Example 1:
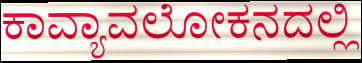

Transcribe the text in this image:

ಕಾವ್ಯಾವಲೋಕನದಲ್ಲಿ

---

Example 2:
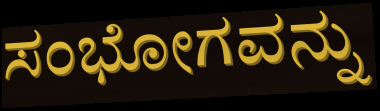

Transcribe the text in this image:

ಸಂಭೋಗವನ್ನು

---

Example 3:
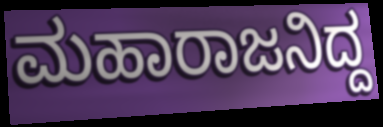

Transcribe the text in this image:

ಮಹಾರಾಜನಿದ್ದ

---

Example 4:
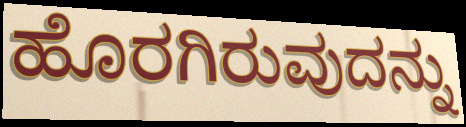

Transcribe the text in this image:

ಹೊರಗಿರುವುದನ್ನು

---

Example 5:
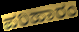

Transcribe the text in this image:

ಪರಿಹಾರಂ